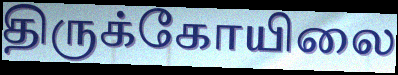
திருக்கோயிலை